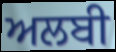
ਅਲਬੀ